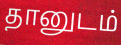
தானுடம்